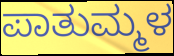
ಪಾತುಮ್ಮಳ